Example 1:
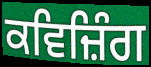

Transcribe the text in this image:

ਕਵਿਜ਼ਿੰਗ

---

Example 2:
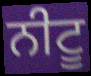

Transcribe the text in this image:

ਨੀਟੂ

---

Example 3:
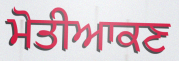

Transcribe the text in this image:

ਮੋਤੀਆਕਣ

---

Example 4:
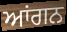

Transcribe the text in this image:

ਆਂਗਨ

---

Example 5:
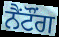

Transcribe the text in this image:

ਨੈਂਟੌਂਗ